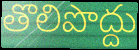
తొలిపొద్దు